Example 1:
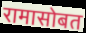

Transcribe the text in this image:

रामासोबत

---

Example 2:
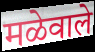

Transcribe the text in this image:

मळेवाले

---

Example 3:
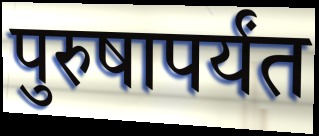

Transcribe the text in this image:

पुरुषापर्यंत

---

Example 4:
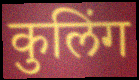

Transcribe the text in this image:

कुलिंग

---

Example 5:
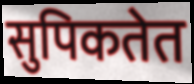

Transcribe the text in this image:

सुपिकतेत